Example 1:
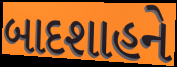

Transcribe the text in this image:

બાદશાહને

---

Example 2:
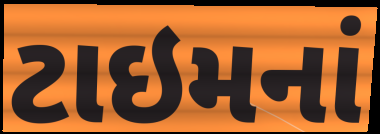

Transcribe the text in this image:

ટાઇમનાં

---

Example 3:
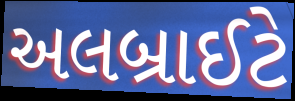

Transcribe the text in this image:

અલબ્રાઈટે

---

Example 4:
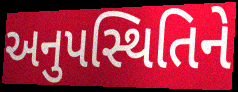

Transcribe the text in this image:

અનુપસ્થિતિને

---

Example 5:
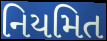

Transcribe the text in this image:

નિયમિત